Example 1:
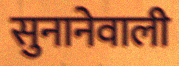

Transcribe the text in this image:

सुनानेवाली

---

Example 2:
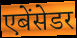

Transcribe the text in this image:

एबेंसेडर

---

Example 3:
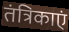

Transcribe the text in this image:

तंत्रिकाएं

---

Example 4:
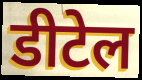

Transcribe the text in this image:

डीटेल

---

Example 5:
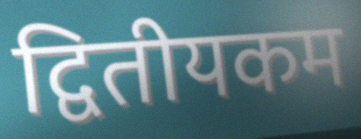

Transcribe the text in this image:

द्वितीयकम